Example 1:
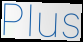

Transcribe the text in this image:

Plus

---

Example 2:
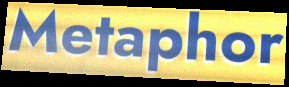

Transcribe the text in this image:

Metaphor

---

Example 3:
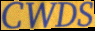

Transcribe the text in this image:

CWDS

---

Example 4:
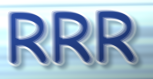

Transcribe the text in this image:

RRR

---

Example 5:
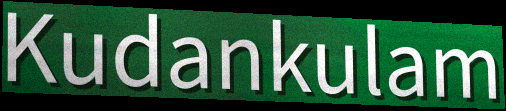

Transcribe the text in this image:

Kudankulam